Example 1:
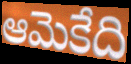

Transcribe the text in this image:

ఆమెకేది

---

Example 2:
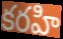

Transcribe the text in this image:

కరహి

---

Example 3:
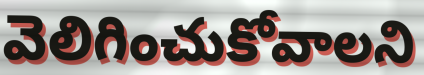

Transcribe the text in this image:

వెలిగించుకోవాలని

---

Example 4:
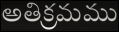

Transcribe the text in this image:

అతిక్రమము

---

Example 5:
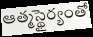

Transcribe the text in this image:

ఆత్మస్థైర్యంతో